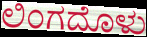
ಲಿಂಗದೊಳು